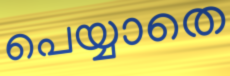
പെയ്യാതെ